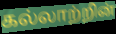
கல்லாற்றின்